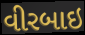
વીરબાઇ